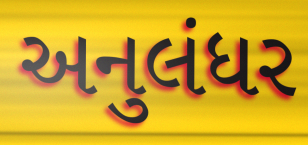
અનુલંધર